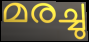
മരച്ചു